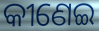
କୀଣେଇ